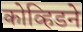
कोव्हिडने